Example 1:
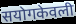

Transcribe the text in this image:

सयोगकेवली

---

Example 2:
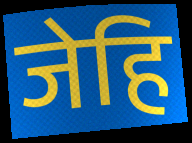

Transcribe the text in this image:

जेहि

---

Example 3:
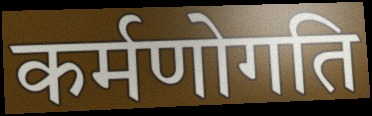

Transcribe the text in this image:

कर्मणोगति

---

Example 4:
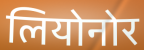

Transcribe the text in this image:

लियोनोर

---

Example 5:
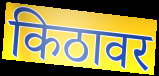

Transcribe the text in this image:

किठावर